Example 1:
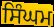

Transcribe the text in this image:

ਸਿੰਘਮ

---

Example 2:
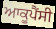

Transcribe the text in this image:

ਆਕੂਪੈਂਸੀ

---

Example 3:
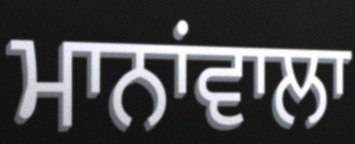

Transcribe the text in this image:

ਮਾਨਾਂਵਾਲਾ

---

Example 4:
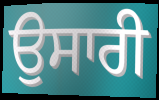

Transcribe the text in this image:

ਉਸਾਰੀ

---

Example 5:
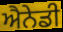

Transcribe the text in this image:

ਐਨੇਡੀ